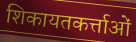
शिकायतकर्त्ताओं